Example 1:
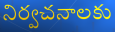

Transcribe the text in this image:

నిర్వచనాలకు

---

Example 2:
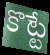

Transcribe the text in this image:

కొట్టే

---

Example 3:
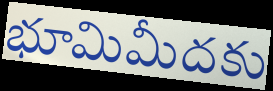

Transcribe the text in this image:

భూమిమీదకు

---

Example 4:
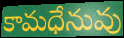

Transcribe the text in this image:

కామధేనువు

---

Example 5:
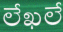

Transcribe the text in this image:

లేఖలే